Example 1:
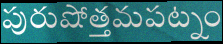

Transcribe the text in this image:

పురుషోత్తమపట్నం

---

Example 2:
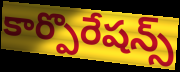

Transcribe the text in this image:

కార్పొరేషన్స్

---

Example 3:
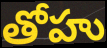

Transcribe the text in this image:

తోహు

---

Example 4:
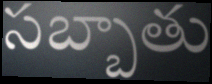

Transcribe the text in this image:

సబ్బాతు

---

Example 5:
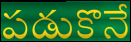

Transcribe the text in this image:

పడుకొనే